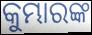
କୁମ୍ଭାରଙ୍କ